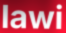
lawi